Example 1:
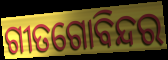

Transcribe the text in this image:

ଗୀତଗୋବିନ୍ଦର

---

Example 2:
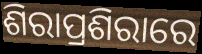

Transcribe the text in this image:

ଶିରାପ୍ରଶିରାରେ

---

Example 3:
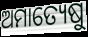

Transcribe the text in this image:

ଅମାତ୍ୟେଷୁ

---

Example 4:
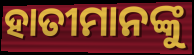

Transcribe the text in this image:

ହାତୀମାନଙ୍କୁ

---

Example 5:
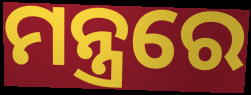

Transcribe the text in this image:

ମନ୍ତ୍ରରେ